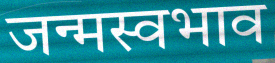
जन्मस्वभाव